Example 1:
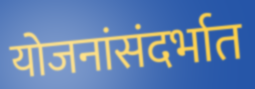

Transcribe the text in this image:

योजनांसंदर्भात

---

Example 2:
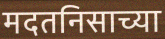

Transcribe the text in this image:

मदतनिसाच्या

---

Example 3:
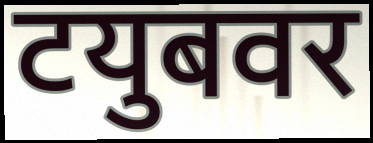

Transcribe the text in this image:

टयुबवर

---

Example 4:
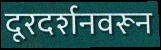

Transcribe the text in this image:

दूरदर्शनवरून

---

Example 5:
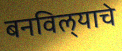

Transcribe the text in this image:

बनविल्याचे